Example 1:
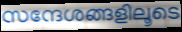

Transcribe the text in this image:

സന്ദേശങ്ങളിലൂടെ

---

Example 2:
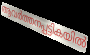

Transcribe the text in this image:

ആവർത്തനപ്പട്ടികയിൽ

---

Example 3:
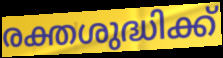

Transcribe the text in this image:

രക്തശുദ്ധിക്ക്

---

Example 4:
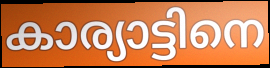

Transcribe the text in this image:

കാര്യാട്ടിനെ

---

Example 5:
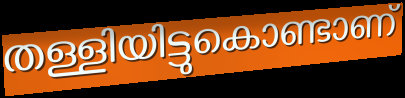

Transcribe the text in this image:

തള്ളിയിട്ടുകൊണ്ടാണ്